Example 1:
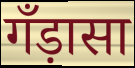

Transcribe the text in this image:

गँड़ासा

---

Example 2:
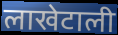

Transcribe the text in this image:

लाखेटाली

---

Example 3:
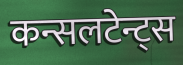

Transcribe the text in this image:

कन्सलटेन्ट्स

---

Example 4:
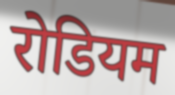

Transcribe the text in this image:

रोडियम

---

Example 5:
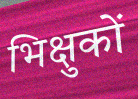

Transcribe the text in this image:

भिक्षुकों